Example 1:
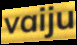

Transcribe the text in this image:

vaiju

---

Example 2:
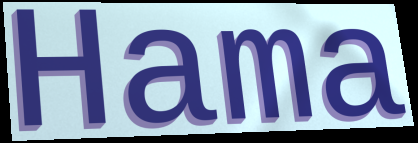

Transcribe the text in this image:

Hama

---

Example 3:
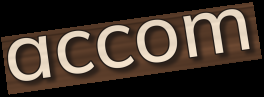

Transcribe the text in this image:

accom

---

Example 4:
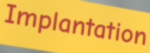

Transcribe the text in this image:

Implantation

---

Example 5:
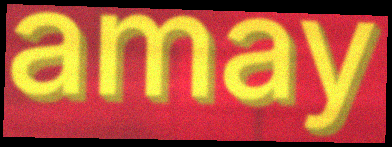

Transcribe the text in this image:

amay